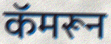
कॅमरून